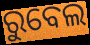
ରୁବେଲ